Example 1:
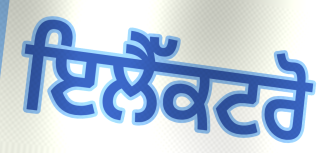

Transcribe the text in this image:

ਇਲੈੱਕਟਰੋ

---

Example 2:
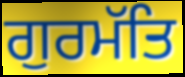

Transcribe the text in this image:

ਗੁਰਮੱਤਿ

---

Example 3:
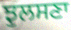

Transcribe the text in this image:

ਝੁਲਸਣਾ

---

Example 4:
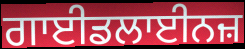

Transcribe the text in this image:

ਗਾਈਡਲਾਈਨਜ਼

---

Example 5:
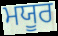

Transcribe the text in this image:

ਮਯੂਰ